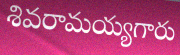
శివరామయ్యగారు